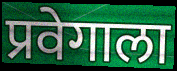
प्रवेगाला